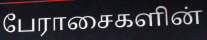
பேராசைகளின்